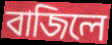
বাজিলে